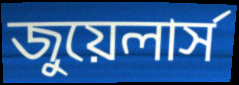
জুয়েলার্স